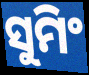
ସୁମିଂ